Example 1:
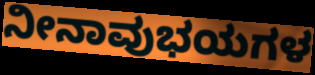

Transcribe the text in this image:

ನೀನಾವುಭಯಗಳ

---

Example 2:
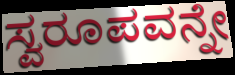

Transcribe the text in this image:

ಸ್ವರೂಪವನ್ನೇ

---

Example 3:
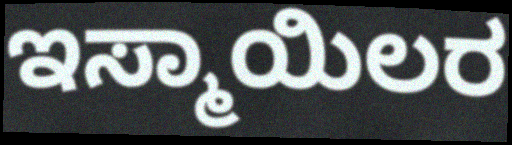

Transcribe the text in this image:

ಇಸ್ಮಾಯಿಲರ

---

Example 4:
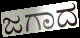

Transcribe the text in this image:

ಜಗಾದ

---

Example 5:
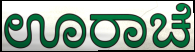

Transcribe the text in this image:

ಊರಾಚೆ